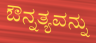
ಔನ್ನತ್ಯವನ್ನು